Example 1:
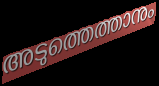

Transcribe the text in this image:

അടുത്തെത്താനും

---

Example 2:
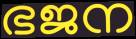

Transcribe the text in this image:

ഭജന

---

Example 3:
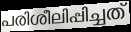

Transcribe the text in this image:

പരിശീലിപ്പിച്ചത്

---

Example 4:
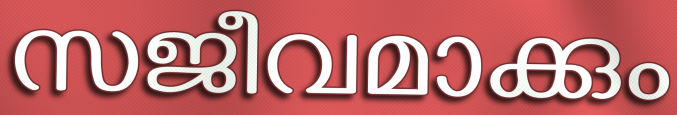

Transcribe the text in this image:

സജീവമാക്കും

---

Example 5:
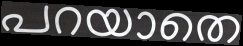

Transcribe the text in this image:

പറയാതെ